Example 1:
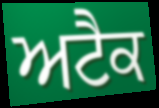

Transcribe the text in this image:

ਅਟੈਕ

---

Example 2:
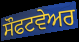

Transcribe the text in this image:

ਸੌਫਟਵੇਅਰ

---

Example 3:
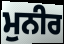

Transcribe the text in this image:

ਮੁਨੀਰ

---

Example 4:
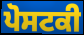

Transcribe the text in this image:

ਪੋਸਟਕੀ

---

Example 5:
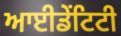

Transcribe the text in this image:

ਆਈਡੇਂਟਿਟੀ